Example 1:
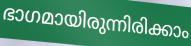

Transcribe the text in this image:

ഭാഗമായിരുന്നിരിക്കാം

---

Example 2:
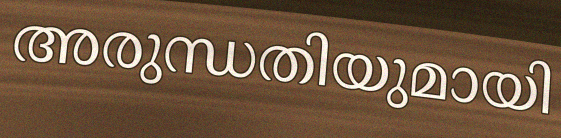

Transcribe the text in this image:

അരുന്ധതിയുമായി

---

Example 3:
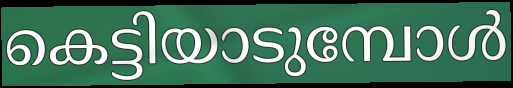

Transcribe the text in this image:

കെട്ടിയാടുമ്പോൾ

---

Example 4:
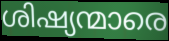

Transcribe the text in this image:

ശിഷ്യന്മാരെ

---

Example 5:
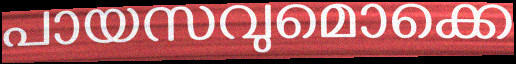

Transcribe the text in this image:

പായസവുമൊക്കെ